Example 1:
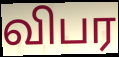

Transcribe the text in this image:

விபர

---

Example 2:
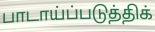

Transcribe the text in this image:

பாடாய்ப்படுத்திக்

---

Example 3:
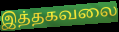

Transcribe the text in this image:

இத்தகவலை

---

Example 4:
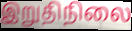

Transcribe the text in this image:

இறுதிநிலை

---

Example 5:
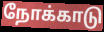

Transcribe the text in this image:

நோக்காடு